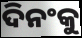
ଦିନଂକୁ